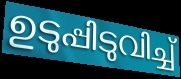
ഉടുപ്പിടുവിച്ച്